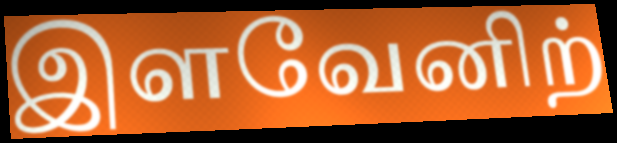
இளவேனிற்